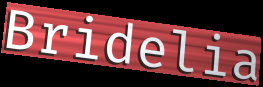
Bridelia